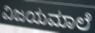
ವಿಜಯಮಾಲೆ